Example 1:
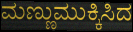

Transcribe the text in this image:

ಮಣ್ಣುಮುಕ್ಕಿಸಿದ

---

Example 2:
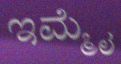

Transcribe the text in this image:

ಇಮ್ಮೈ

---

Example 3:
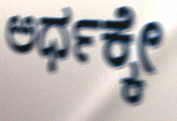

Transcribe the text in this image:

ಅರ್ಧಕ್ಕೇ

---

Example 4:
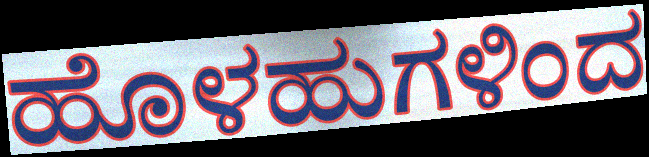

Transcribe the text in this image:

ಹೊಳಹುಗಳಿಂದ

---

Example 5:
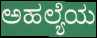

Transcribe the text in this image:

ಅಹಲ್ಯೆಯ